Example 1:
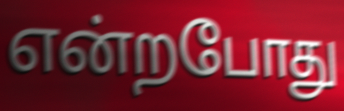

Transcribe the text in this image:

என்றபோது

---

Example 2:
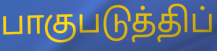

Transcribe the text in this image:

பாகுபடுத்திப்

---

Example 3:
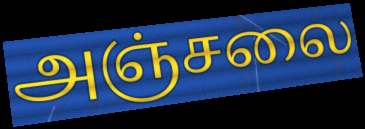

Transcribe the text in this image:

அஞ்சலை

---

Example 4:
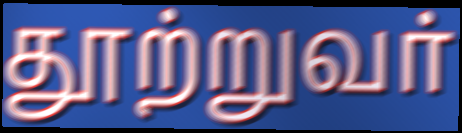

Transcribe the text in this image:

தூற்றுவர்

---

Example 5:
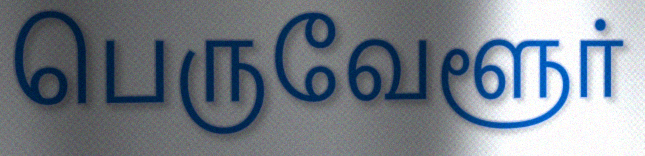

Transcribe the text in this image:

பெருவேளூர்